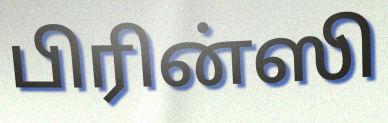
பிரின்ஸி